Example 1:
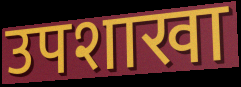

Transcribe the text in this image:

उपशाखा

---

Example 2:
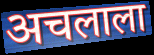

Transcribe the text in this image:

अचलाला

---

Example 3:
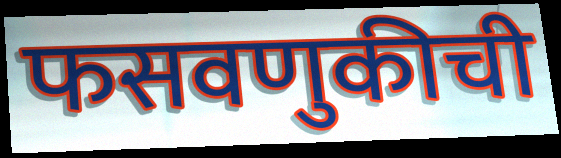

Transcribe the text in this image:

फसवणुकीची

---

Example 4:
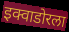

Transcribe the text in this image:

इक्वाडोरला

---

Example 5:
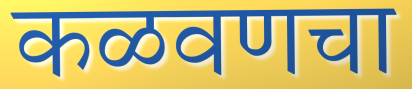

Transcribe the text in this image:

कळवणचा